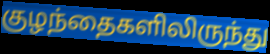
குழந்தைகளிலிருந்து